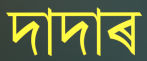
দাদাৰ